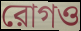
রোগও